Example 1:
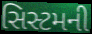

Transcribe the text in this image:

સિસ્ટમની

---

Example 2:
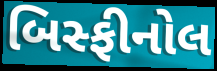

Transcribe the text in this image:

બિસ્ફીનોલ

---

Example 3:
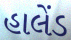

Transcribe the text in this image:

હાલેંડ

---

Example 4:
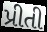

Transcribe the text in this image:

પ્રીતી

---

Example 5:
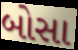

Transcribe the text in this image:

બોસા